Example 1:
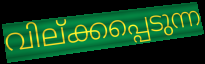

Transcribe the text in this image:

വില്ക്കപ്പെടുന്ന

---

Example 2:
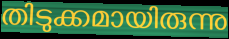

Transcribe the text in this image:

തിടുക്കമായിരുന്നു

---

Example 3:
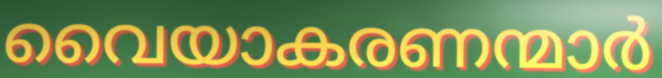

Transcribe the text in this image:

വൈയാകരണന്മാർ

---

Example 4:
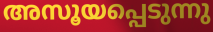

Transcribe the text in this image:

അസൂയപ്പെടുന്നു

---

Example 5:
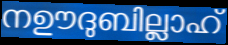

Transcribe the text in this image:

നഊദുബില്ലാഹ്